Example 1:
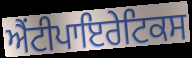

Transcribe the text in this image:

ਐਂਟੀਪਾਇਰੇਟਿਕਸ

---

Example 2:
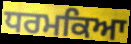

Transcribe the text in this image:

ਧਰਮਕਿਆ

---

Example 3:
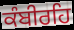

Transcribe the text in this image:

ਕੰਬੀਰਹਿ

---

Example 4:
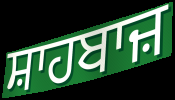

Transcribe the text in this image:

ਸ਼ਾਹਬਾਜ਼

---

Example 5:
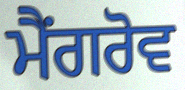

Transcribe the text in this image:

ਮੈਂਗਰੋਵ